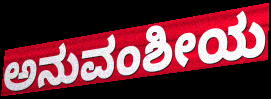
ಅನುವಂಶೀಯ